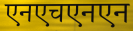
एनएचएनएन